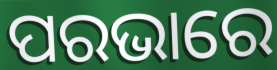
ପରଭାରେ